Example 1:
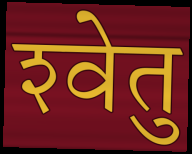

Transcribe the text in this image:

श्वेतु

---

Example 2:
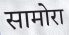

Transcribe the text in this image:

सामोरा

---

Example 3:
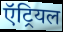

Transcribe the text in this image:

ऍट्रियल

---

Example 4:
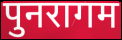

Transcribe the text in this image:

पुनरागम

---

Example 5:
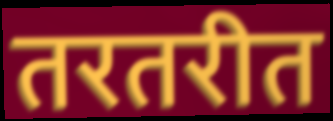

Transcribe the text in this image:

तरतरीत